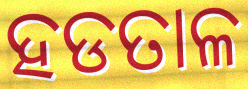
ହଡତାଳ